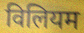
विलियम